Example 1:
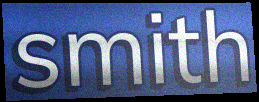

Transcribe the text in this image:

smith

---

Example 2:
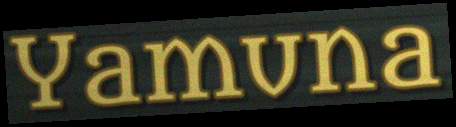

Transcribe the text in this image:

Yamuna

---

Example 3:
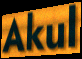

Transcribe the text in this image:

Akul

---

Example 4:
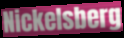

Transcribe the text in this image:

Nickelsberg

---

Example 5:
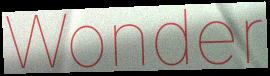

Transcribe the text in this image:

Wonder